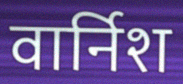
वार्निश